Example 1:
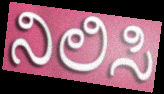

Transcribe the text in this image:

ನಿಲಿಸಿ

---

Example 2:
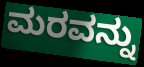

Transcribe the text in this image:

ಮರವನ್ನು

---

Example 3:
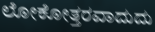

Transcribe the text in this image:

ಲೋಕೋತ್ತರವಾದುದು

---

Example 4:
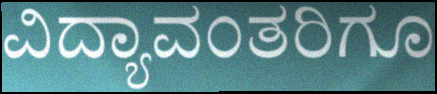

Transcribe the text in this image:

ವಿದ್ಯಾವಂತರಿಗೂ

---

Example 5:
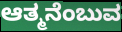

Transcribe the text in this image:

ಆತ್ಮನೆಂಬುವ